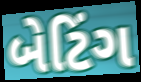
બેટિંગ